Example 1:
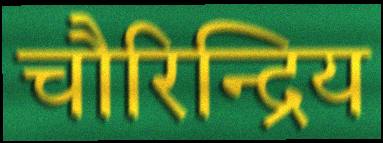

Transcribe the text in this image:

चौरिन्द्रिय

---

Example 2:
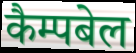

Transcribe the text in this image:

कैम्पबेल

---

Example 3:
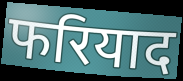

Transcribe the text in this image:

फरियाद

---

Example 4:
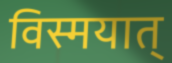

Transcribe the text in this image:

विस्मयात्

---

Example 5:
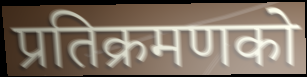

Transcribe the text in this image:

प्रतिक्रमणको